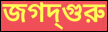
জগদ্‌গুরু